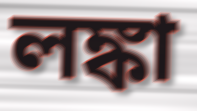
লঙ্কা